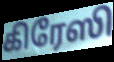
கிரேஸி